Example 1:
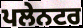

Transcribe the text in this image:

ਪਲੇਨਟਰ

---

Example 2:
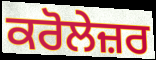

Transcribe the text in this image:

ਕਰੋਲੇਜ਼ਰ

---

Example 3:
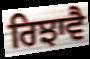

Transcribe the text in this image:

ਰਿਝਾਵੈ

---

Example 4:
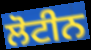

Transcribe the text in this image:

ਲੋਟੀਨ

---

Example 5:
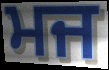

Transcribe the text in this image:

ਮਜ